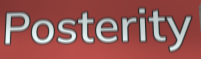
Posterity